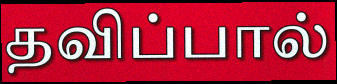
தவிப்பால்